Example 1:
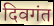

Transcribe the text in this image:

दिवगंत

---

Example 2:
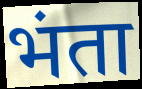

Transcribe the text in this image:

भंता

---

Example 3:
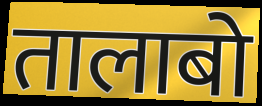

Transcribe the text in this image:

तालाबो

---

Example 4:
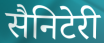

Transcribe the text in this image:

सैनिटेरी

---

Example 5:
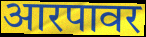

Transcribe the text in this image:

आरपावर